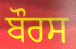
ਬੌਰਸ